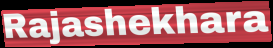
Rajashekhara